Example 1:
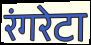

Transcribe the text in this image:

रंगरेटा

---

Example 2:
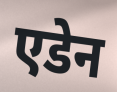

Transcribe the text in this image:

एडेन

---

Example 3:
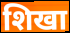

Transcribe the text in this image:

शिखा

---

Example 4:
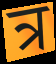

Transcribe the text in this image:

त्र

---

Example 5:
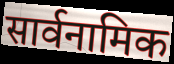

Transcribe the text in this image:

सार्वनामिक